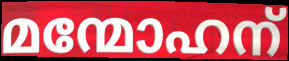
മന്മോഹന്